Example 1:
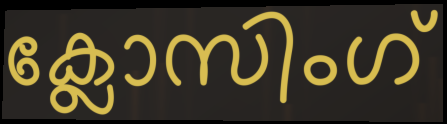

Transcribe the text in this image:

ക്ലോസിംഗ്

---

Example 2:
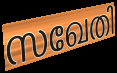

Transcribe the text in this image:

സഖേതി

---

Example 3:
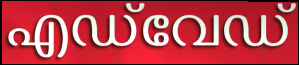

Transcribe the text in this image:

എഡ്‌വേഡ്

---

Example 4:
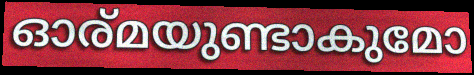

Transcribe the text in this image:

ഓര്മയുണ്ടാകുമോ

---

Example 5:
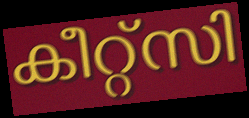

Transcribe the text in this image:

കീറ്റ്സി